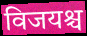
विजयश्च